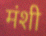
मंशी